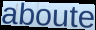
aboute